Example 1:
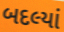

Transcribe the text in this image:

બદલ્યાં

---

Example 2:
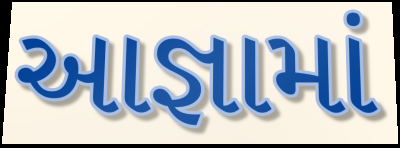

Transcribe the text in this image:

આજ્ઞામાં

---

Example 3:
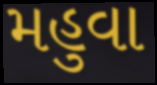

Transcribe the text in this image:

મહુવા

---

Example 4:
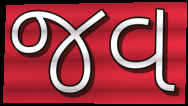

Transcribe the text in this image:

જવ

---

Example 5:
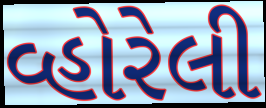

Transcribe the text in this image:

વ્હોરેલી